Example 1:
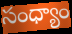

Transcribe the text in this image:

సంధ్యాం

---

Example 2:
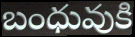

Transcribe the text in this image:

బంధువుకి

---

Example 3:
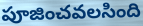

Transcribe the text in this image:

పూజించవలసింది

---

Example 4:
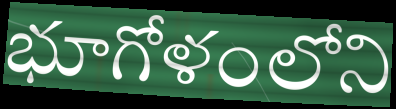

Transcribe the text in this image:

భూగోళంలోని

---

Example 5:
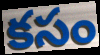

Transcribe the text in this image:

కసం